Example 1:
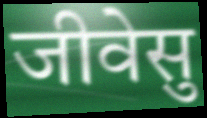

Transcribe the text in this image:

जीवेसु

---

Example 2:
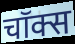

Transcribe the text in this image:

चॉक्स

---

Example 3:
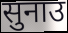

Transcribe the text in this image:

सुनाउ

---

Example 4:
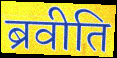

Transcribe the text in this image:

ब्रवीति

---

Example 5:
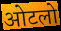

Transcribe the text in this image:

ओटलो